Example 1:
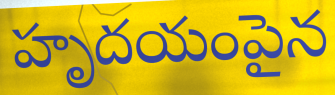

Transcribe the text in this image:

హృదయంపైన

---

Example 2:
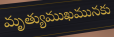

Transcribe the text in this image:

మృత్యుముఖమునకు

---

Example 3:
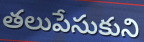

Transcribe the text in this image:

తలుపేసుకుని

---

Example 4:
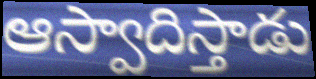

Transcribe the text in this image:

ఆస్వాదిస్తాడు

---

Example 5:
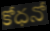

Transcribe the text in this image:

కోధనో